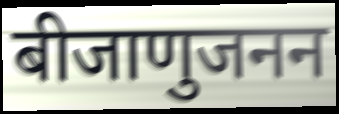
बीजाणुजनन